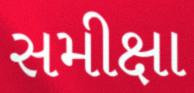
સમીક્ષા